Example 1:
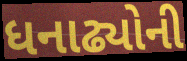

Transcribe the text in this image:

ધનાઢ્યોની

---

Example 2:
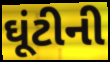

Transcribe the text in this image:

ઘૂંટીની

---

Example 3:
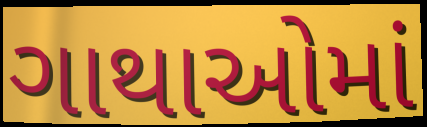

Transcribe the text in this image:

ગાથાઓમાં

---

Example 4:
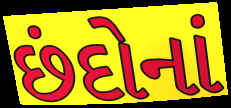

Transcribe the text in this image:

છંદોનાં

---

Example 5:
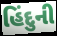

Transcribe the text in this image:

હિંદુની